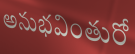
అనుభవింతురో